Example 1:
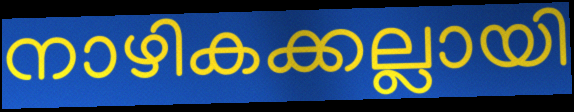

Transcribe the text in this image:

നാഴികക്കല്ലായി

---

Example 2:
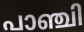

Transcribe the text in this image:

പാഞ്ചി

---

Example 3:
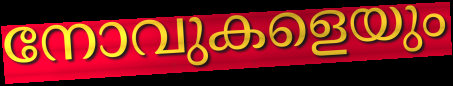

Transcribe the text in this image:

നോവുകളെയും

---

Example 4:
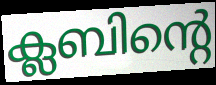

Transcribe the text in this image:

ക്ലബിന്റെ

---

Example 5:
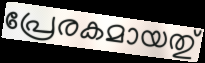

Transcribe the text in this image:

പ്രേരകമായതു്